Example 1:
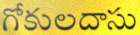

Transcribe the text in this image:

గోకులదాసు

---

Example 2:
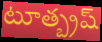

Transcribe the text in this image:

టూత్బ్రష్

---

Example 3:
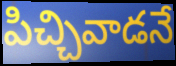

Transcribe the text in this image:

పిచ్చివాడనే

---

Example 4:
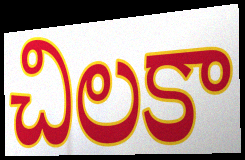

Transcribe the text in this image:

చిలకా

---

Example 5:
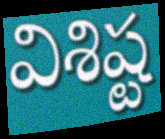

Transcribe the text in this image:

విశిష్ట